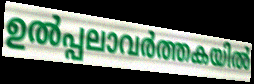
ഉൽപ്പലാവർത്തകയിൽ